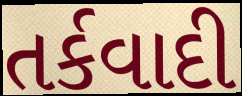
તર્કવાદી